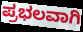
ಪ್ರಭಲವಾಗಿ